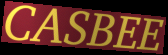
CASBEE